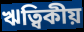
ঋত্বিকীয়